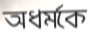
অধর্মকে